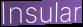
Insular